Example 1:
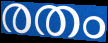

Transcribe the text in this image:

രതം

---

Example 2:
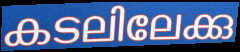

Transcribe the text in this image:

കടലിലേക്കു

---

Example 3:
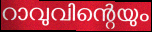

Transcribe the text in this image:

റാവുവിന്റെയും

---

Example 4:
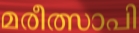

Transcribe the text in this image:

മരീത്സാപി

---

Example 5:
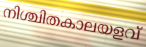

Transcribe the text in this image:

നിശ്ചിതകാലയളവ്